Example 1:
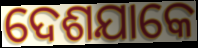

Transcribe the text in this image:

ଦେଶଯାକେ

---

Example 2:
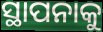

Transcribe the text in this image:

ସ୍ଥାପନାକୁ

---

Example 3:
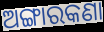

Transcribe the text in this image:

ଅଙ୍ଗାରକଣା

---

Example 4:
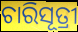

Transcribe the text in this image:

ଚାରିସୂତ୍ରୀ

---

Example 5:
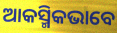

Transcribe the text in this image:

ଆକସ୍ମିକଭାବେ